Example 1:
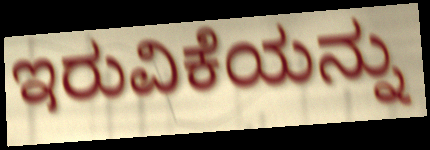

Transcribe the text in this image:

ಇರುವಿಕೆಯನ್ನು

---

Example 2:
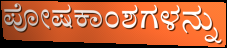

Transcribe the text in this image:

ಪೋಷಕಾಂಶಗಳನ್ನು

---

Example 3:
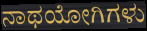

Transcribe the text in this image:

ನಾಥಯೋಗಿಗಳು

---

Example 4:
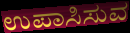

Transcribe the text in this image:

ಉಪಾಸಿಸುವ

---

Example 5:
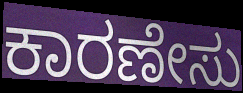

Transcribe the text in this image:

ಕಾರಣೇಸು